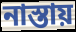
নাস্তায়